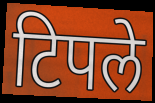
टिपले